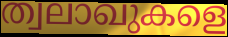
ത്വലാഖുകളെ